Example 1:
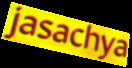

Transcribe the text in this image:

jasachya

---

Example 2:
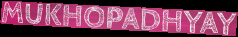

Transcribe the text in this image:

MUKHOPADHYAY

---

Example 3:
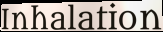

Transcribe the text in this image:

Inhalation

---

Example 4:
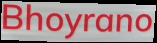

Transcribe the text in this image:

Bhoyrano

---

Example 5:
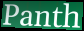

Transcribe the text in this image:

Panth